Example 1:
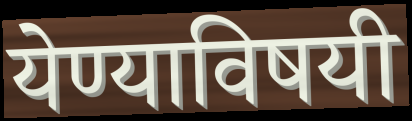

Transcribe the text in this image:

येण्याविषयी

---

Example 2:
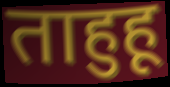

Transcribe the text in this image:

ताहुहू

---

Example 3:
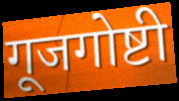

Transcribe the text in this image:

गूजगोष्टी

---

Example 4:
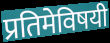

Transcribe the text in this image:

प्रतिमेविषयी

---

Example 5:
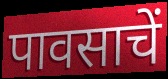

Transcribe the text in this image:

पावसाचें